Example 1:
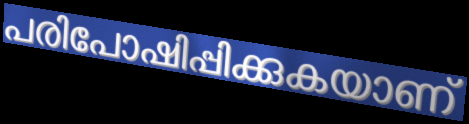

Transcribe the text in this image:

പരിപോഷിപ്പിക്കുകയാണ്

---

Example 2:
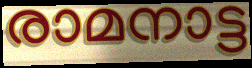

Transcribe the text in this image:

രാമനാട്ട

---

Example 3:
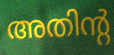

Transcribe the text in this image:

അതിന്റ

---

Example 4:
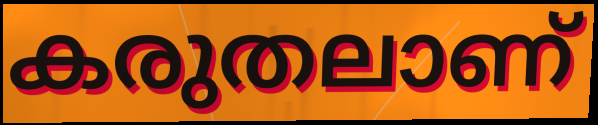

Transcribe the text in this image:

കരുതലാണ്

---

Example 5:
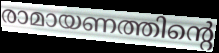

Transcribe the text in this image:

രാമായണത്തിന്റെ